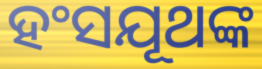
ହଂସଯୂଥଙ୍କ